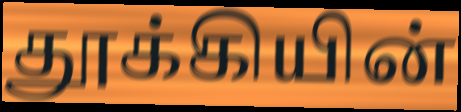
தூக்கியின்